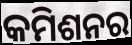
କମିଶନର